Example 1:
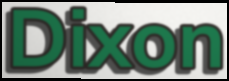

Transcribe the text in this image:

Dixon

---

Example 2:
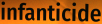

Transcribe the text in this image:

infanticide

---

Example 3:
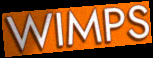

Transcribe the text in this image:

WIMPS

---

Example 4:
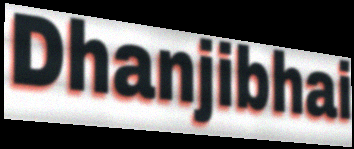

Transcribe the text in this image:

Dhanjibhai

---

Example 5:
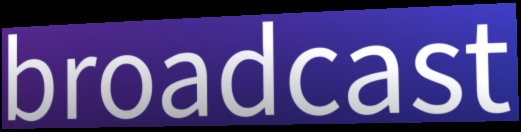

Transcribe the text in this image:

broadcast